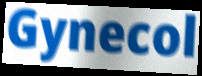
Gynecol